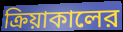
ক্রিয়াকালের